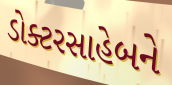
ડોક્ટરસાહેબને